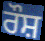
ਰੌਸ਼